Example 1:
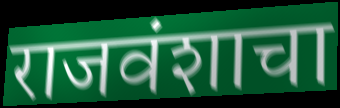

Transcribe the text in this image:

राजवंशाचा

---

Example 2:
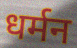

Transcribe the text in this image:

धर्मन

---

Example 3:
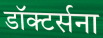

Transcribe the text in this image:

डॉक्टर्सना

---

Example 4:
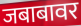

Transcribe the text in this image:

जबाबावर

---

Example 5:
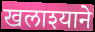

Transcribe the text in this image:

खलाश्याने